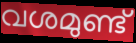
വശമുണ്ട്